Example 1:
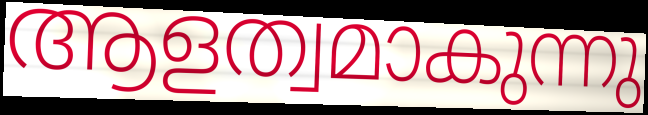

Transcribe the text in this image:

ആളത്വമാകുന്നു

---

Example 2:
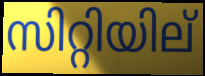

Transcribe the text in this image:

സിറ്റിയില്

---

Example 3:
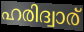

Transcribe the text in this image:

ഹരിദ്വാര്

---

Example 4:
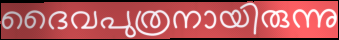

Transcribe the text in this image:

ദൈവപുത്രനായിരുന്നു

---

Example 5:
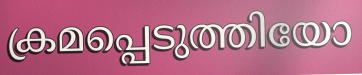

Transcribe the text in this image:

ക്രമപ്പെടുത്തിയോ